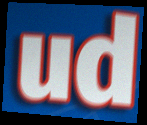
ud